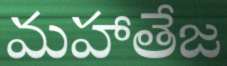
మహాతేజ